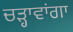
ਚੜ੍ਹਾਵਾਂਗਾ